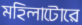
মহিলাটোৱে